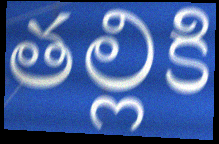
తల్లికి